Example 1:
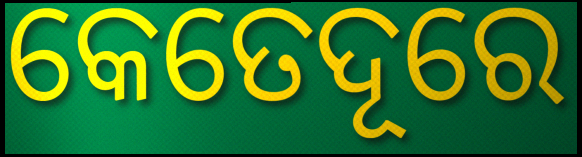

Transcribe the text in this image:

କେତେଦୂରେ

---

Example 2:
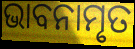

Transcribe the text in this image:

ଭାବନାମୃତ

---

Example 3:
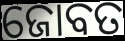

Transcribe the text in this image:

ଜୋବତ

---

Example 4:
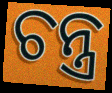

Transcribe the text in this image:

ଚନ୍ତ୍ର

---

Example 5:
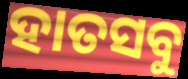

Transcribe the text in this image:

ହାତସବୁ